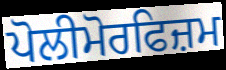
ਪੋਲੀਮੋਰਫਿਜ਼ਮ